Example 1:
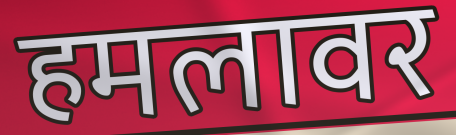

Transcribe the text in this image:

हमलावर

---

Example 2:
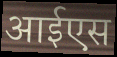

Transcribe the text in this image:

आईएस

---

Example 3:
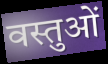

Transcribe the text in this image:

वस्तुओं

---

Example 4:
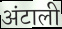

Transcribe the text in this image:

अंटाली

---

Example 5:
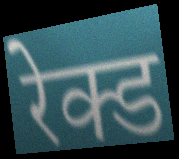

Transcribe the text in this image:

रेक्ड